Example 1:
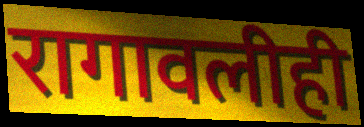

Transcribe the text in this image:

रागावलीही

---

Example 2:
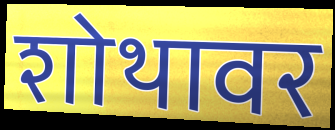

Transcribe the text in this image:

शोथावर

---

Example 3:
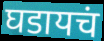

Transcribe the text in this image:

घडायचं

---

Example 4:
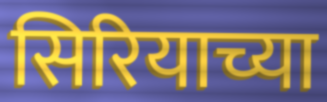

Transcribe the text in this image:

सिरियाच्या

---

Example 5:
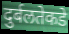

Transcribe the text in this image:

दुर्बलतेकडे